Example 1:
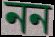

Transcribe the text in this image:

নন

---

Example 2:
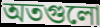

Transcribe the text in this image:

অতগুলো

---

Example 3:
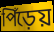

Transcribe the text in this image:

পিঁড়েয়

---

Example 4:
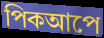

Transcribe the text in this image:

পিকআপে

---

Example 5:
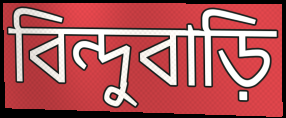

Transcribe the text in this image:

বিন্দুবাড়ি